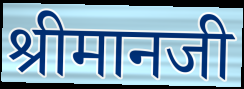
श्रीमानजी